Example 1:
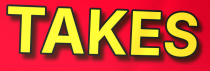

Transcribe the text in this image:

TAKES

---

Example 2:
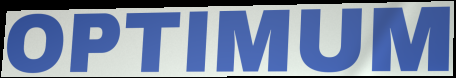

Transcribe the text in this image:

OPTIMUM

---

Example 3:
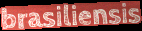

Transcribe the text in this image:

brasiliensis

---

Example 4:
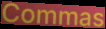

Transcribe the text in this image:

Commas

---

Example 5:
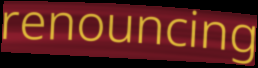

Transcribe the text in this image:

renouncing